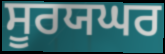
ਸੂਰਯਘਰ